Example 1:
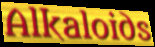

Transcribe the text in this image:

Alkaloids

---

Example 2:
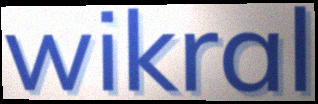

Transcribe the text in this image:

wikral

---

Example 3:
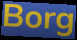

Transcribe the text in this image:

Borg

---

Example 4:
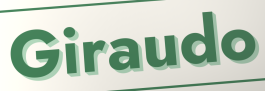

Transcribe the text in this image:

Giraudo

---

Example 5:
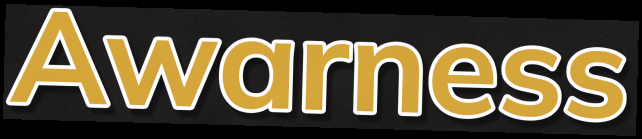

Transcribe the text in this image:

Awarness